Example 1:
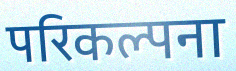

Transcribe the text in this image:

परिकल्पना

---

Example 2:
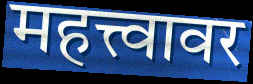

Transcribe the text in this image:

महत्त्वावर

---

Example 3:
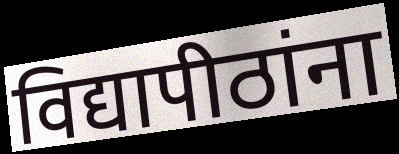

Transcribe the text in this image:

विद्यापीठांना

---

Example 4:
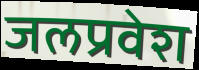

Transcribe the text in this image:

जलप्रवेश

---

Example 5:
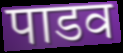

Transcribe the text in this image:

पाडव